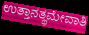
ಉತ್ತಾನತ್ಥಮೇವಾತಿ